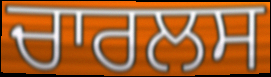
ਚਾਰਲਸ